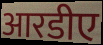
आरडीए